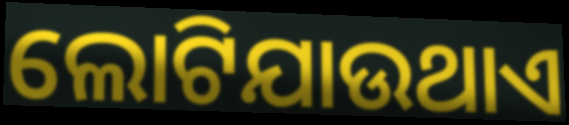
ଲୋଟିଯାଉଥାଏ